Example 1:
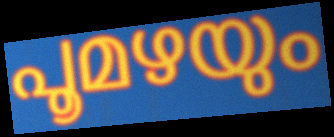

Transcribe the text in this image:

പൂമഴയും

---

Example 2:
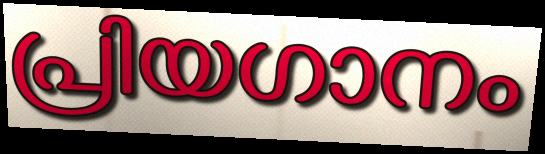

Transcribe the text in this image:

പ്രിയഗാനം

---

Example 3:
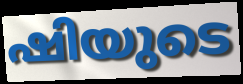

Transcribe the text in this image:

ഷിയുടെ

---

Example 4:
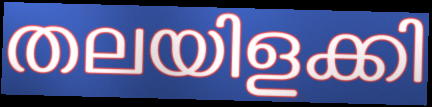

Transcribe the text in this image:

തലയിളക്കി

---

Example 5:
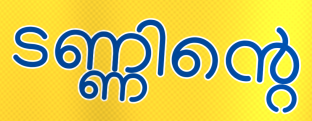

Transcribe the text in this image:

ടണ്ണിന്റെ